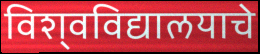
विश्वविद्यालयाचे